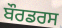
ਬੌਰਡਰਸ